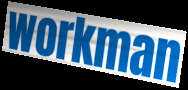
workman